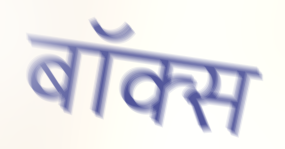
बॉक्‍स